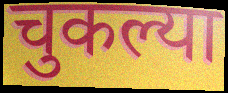
चुकल्या